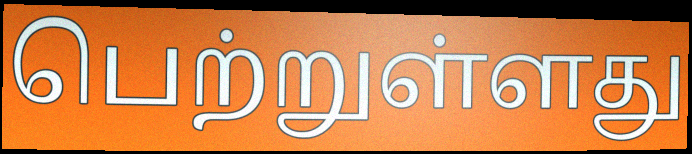
பெற்றுள்ளது